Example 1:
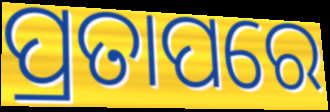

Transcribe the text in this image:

ପ୍ରତାପରେ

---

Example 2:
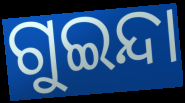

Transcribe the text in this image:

ଗୁଇନ୍ଦା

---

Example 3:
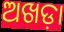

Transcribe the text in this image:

ଅଖଡ଼ା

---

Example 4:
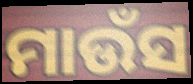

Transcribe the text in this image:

ମାଉଁସ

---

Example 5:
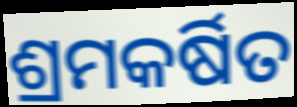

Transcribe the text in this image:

ଶ୍ରମକର୍ଷିତ